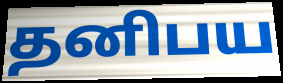
தனிபய